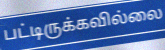
பட்டிருக்கவில்லை